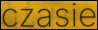
czasie